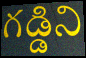
గడ్డిని